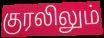
குரலிலும்